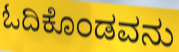
ಓದಿಕೊಂಡವನು